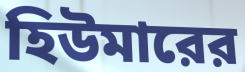
হিউমারের